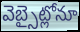
వెబ్సైట్లోనూ